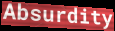
Absurdity